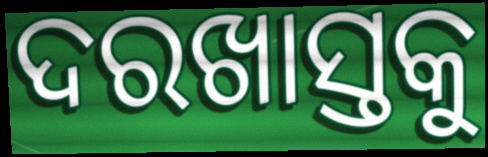
ଦରଖାସ୍ତକୁ